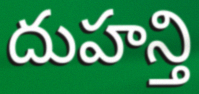
దుహన్తి